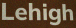
Lehigh